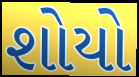
શોયો